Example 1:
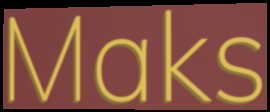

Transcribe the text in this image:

Maks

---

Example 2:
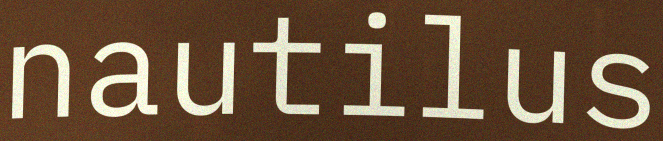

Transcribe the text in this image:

nautilus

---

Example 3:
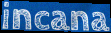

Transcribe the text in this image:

incana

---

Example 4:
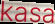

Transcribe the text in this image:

kasa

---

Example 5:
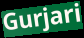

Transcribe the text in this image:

Gurjari